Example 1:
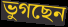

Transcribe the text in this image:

ভুগছেন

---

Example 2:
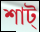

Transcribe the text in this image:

শাট্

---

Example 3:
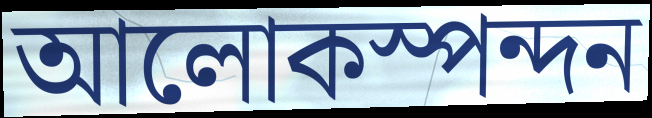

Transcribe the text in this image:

আলোকস্পন্দন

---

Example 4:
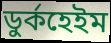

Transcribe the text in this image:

ডুর্কহেইম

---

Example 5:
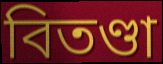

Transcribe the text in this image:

বিতণ্ডা